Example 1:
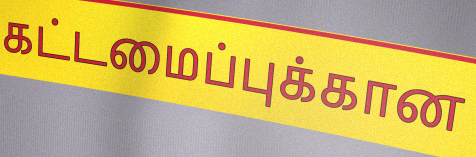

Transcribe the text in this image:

கட்டமைப்புக்கான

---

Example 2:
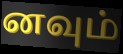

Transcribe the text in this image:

னவும்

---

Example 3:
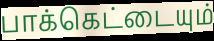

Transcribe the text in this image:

பாக்கெட்டையும்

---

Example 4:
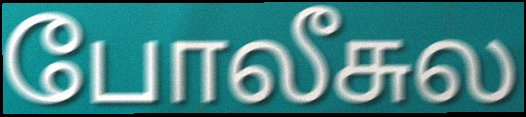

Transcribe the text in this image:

போலீசுல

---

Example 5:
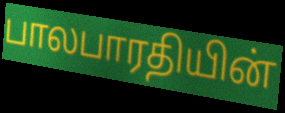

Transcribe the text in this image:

பாலபாரதியின்